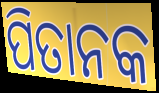
ପିତାନକ